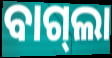
ବାଗ୍‌ଲା